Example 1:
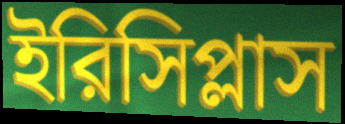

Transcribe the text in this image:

ইরিসিপ্লাস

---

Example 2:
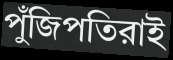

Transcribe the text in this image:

পুঁজিপতিরাই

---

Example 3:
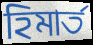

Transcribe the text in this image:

হিমার্ত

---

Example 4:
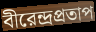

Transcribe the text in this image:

বীরেন্দ্রপ্রতাপ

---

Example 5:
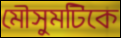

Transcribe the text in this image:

মৌসুমটিকে